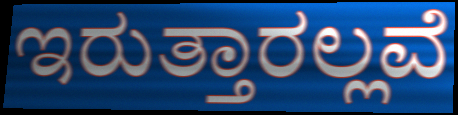
ಇರುತ್ತಾರಲ್ಲವೆ